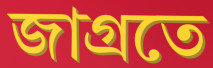
জাগ্রতে